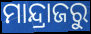
ମାନ୍ଦ୍ରାଜରୁ